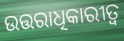
ଉତ୍ତରାଧିକାରୀତ୍ଵ